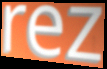
rez